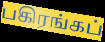
பகிரங்கப்